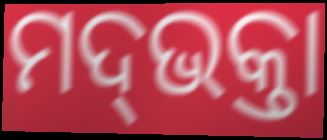
ମଦ୍‌ଭକ୍ତା